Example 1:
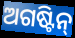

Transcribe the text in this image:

ଅଗଷ୍ଟିନ୍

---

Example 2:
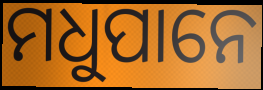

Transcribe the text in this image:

ମଧୁପାନେ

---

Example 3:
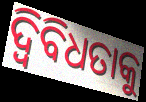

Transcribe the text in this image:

ଦ୍ୱିବିଧତାକୁ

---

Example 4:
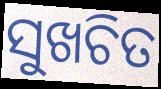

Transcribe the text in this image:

ସୁଖଚିତ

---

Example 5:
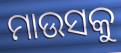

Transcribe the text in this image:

ମାଉସକୁ